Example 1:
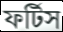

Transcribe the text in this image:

ফর্টিস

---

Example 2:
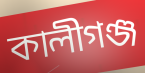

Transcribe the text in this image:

কালীগঞ্জ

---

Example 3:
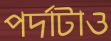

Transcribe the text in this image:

পর্দাটাও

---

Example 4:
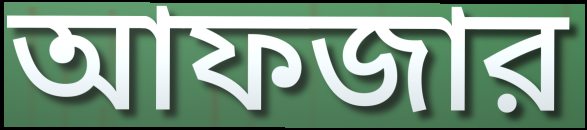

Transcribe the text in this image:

আফজার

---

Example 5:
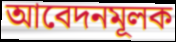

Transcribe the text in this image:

আবেদনমূলক